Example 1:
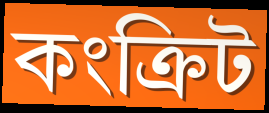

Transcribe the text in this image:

কংক্ৰিট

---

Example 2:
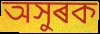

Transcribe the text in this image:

অসুৰক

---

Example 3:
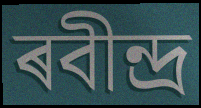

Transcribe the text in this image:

ৰবীন্দ্ৰ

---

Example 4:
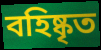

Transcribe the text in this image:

বহিষ্কৃত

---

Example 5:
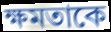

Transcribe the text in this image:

ক্ষমতাকে